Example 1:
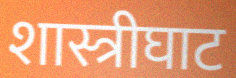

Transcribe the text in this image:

शास्त्रीघाट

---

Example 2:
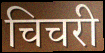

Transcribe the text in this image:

चिचरी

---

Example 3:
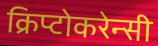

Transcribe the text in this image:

क्रिप्टोकरेन्सी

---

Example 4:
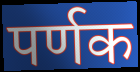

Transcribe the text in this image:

पर्णक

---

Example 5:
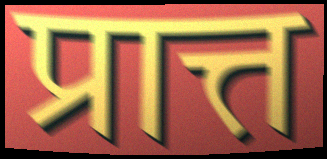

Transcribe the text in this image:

प्रात्त